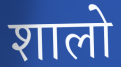
शालो